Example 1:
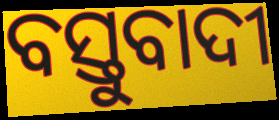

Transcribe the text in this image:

ବସ୍ତୁବାଦୀ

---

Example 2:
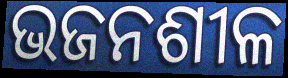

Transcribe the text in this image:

ଭଜନଶୀଳ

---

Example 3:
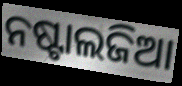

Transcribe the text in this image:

ନଷ୍ଟାଲଜିଆ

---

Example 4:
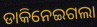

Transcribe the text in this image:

ଡାକିନେଇଗଲା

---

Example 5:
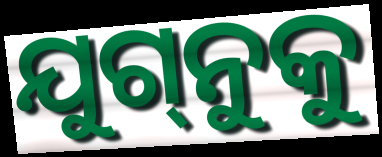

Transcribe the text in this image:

ଯୁଗ୍‌ନୁକୁ